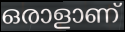
ഒരാളാണ്